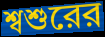
শ্বশুরের